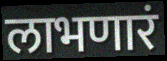
लाभणारं